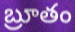
బ్రూతం